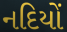
નદિયોં